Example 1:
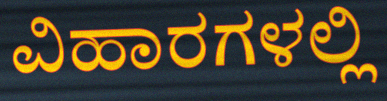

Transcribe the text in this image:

ವಿಹಾರಗಳಲ್ಲಿ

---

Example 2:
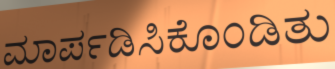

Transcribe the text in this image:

ಮಾರ್ಪಡಿಸಿಕೊಂಡಿತು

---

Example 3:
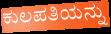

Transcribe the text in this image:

ಕುಲಪತಿಯನ್ನು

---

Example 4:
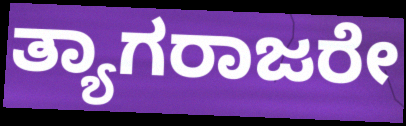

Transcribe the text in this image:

ತ್ಯಾಗರಾಜರೇ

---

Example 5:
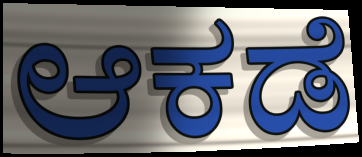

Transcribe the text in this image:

ಆಕಡೆ